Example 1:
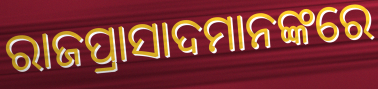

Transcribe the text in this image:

ରାଜପ୍ରାସାଦମାନଙ୍କରେ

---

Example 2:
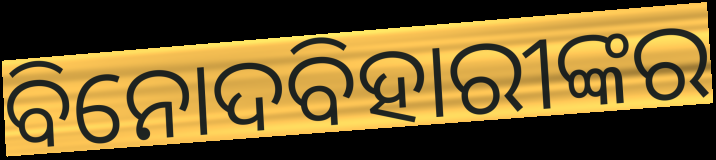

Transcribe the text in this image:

ବିନୋଦବିହାରୀଙ୍କର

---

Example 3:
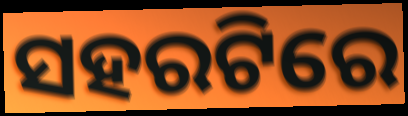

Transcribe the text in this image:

ସହରଟିରେ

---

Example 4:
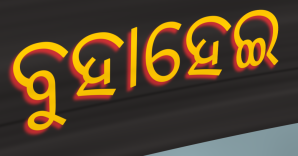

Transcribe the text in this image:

ବୁହାହେଇ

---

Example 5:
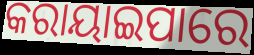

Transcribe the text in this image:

କରାୟାଇପାରେ